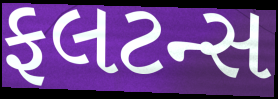
ફલટન્સ